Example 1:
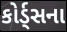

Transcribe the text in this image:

કોર્ડ્સના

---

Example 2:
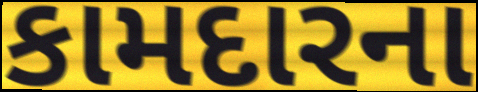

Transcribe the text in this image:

કામદારના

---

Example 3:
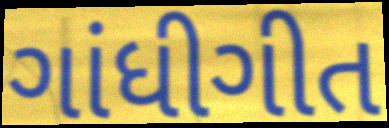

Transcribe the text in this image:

ગાંધીગીત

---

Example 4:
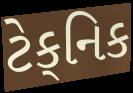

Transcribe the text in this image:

ટેક્‌નિક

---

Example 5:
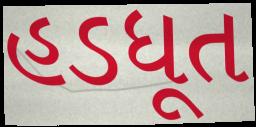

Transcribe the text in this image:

હડધૂત